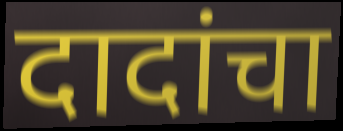
दादांचा